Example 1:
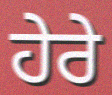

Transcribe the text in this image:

ਹੇਰੇ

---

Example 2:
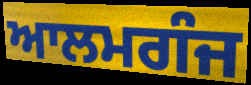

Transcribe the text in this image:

ਆਲਮਗੰਜ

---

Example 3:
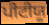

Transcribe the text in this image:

ਪੀਟੀਯੂ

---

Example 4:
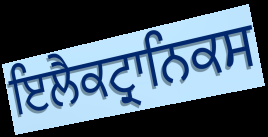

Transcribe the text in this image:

ਇਲੈਕਟ੍ਰਾਨਿਕਸ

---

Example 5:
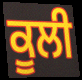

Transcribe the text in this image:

ਕੂਲੀ